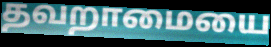
தவறாமையை